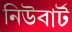
নিউবার্ট